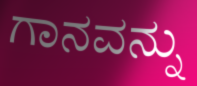
ಗಾನವನ್ನು